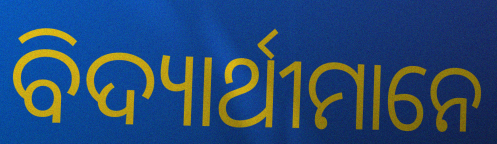
ବିଦ୍ୟାର୍ଥୀମାନେ